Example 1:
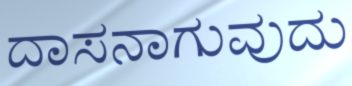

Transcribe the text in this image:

ದಾಸನಾಗುವುದು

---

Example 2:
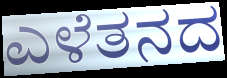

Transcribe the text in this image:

ಎಳೆತನದ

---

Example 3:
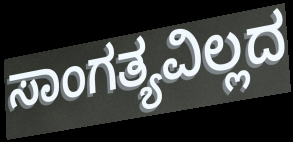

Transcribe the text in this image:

ಸಾಂಗತ್ಯವಿಲ್ಲದ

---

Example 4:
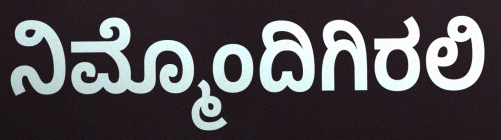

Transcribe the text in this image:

ನಿಮ್ಮೊಂದಿಗಿರಲಿ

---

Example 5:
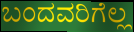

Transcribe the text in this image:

ಬಂದವರಿಗೆಲ್ಲ